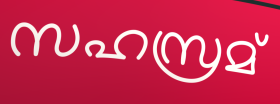
സഹസ്രമ്